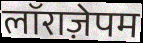
लॉराज़ेपम